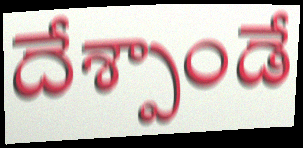
దేశ్పాండే